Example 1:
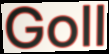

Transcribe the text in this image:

Goll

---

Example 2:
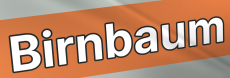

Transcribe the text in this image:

Birnbaum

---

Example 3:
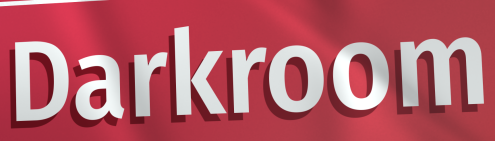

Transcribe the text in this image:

Darkroom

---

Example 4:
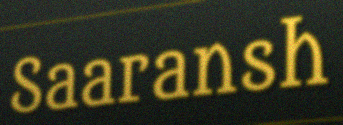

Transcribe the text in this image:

Saaransh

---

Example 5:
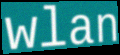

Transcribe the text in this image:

wlan